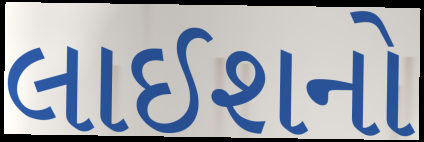
લાઈશનો